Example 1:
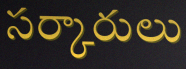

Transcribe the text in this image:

సర్కారులు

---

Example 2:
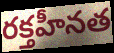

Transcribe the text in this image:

రక్తహీనత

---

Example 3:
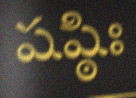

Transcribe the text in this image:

షష్ఠిః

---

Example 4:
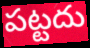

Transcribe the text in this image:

పట్టదు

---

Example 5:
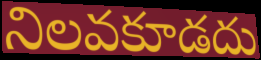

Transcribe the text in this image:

నిలవకూడదు